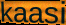
kaasi